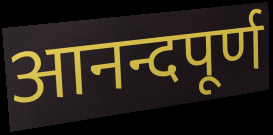
आनन्दपूर्ण